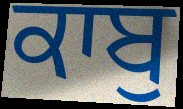
ਕਾਬੁ